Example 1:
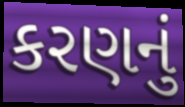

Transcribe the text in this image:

કરણનું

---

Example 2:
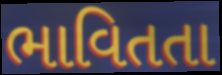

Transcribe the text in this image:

ભાવિતતા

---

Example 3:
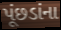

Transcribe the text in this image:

પૂંછડાંના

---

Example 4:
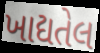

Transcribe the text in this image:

ખાદ્યતેલ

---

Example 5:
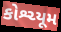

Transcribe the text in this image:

કોશ્ચ્યૂમ